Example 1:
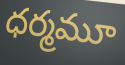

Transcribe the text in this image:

ధర్మమూ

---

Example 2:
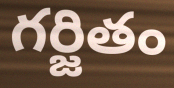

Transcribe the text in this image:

గర్జితం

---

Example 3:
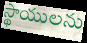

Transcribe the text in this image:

స్థాయులను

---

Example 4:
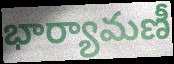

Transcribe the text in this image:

భార్యామణీ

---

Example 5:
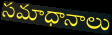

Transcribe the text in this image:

సమాధానాలు